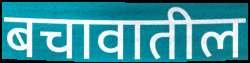
बचावातील